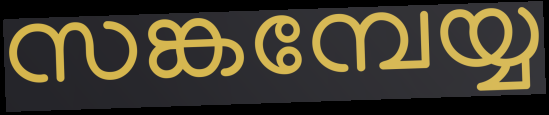
സങ്കമ്പേയ്യ